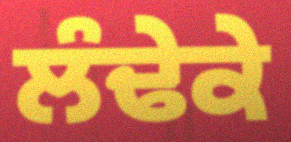
ਲੰਢੇਕੇ